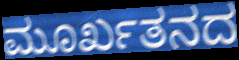
ಮೂರ್ಖತನದ